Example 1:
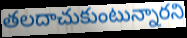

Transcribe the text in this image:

తలదాచుకుంటున్నారని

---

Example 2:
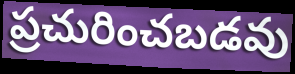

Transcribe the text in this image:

ప్రచురించబడవు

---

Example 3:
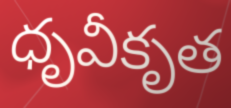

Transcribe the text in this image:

ధృవీకృత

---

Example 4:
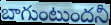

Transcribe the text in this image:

బాగుంటుందనీ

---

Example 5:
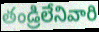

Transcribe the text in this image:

తండ్రిలేనివారి